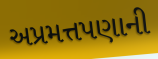
અપ્રમત્તપણાની